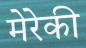
मेरेकी